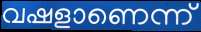
വഷളാണെന്ന്